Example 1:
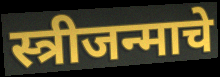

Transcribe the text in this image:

स्त्रीजन्माचे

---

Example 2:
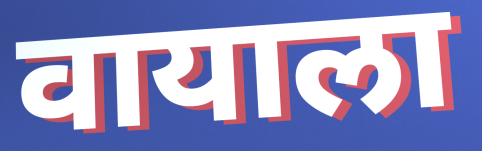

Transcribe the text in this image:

वायाला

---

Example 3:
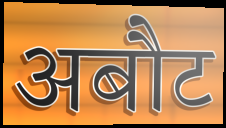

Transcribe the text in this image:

अबौट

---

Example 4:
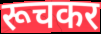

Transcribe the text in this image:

रूचकर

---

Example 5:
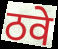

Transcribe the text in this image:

ठवे